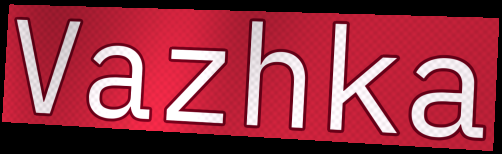
Vazhka